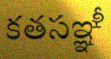
కతసఞ్ఞీ